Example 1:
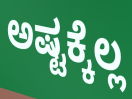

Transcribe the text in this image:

ಅಷ್ಟಕ್ಕೆಲ್ಲ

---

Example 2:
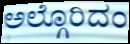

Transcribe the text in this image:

ಅಲ್ಗೊರಿದಂ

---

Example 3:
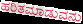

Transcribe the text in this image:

ಹರಿತಮಾಡುವನು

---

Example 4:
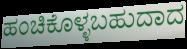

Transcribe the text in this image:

ಹಂಚಿಕೊಳ್ಳಬಹುದಾದ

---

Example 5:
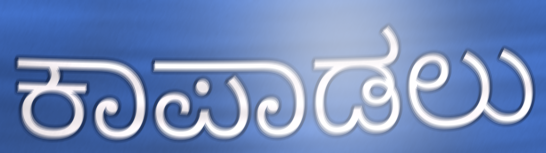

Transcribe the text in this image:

ಕಾಪಾಡಲು